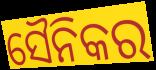
ସୈନିକର